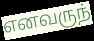
எனவருந்